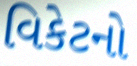
વિકેટનો